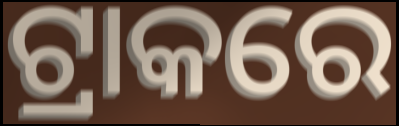
ଟ୍ରାକରେ